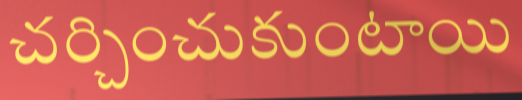
చర్చించుకుంటాయి